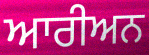
ਆਰੀਅਨ